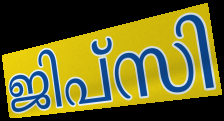
ജിപ്സി